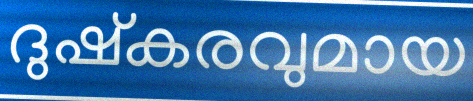
ദുഷ്കരവുമായ